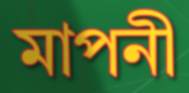
মাপনী